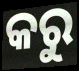
କରୁ